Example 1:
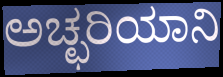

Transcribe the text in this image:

ಅಚ್ಛರಿಯಾನಿ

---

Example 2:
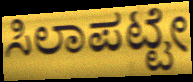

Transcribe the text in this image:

ಸಿಲಾಪಟ್ಟೇ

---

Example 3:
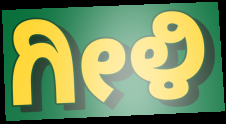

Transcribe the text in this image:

ಗೀಳಿ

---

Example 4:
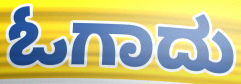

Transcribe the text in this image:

ಓಗಾದು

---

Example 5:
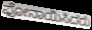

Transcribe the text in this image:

ಫೋನಾಯಿಸಿದರು